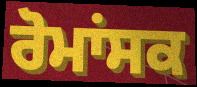
ਰੋਮਾਂਸਕ